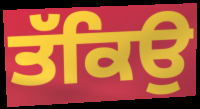
ਤੱਕਿਉ